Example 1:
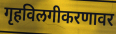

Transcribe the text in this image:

गृहविलगीकरणावर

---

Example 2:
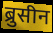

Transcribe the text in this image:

ब्रुसीन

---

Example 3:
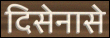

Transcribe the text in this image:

दिसेनासे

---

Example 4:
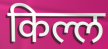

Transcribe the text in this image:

किल्ल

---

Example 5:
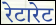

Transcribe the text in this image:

रेटारेट